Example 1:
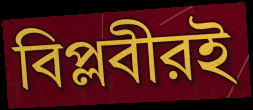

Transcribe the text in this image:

বিপ্লবীরই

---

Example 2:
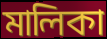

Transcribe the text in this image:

মালিকা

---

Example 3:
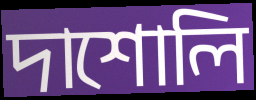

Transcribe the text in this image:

দাশোলি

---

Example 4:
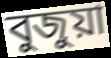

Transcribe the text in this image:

বুজুয়া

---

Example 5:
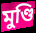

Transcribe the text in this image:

মুণ্ডি